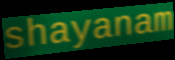
shayanam